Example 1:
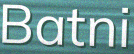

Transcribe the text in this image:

Batni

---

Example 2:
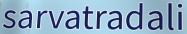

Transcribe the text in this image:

sarvatradali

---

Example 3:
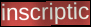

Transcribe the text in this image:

inscriptic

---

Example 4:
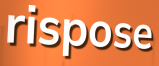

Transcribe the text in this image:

rispose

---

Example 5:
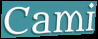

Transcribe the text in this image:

Cami